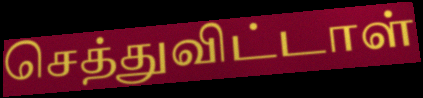
செத்துவிட்டாள்